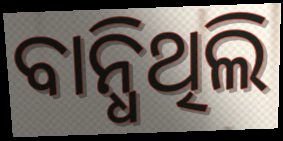
ବାନ୍ଧିଥିଲି